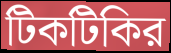
টিকটিকির